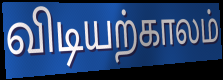
விடியற்காலம்